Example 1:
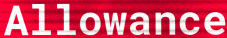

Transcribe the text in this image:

Allowance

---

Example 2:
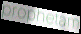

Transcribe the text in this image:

prophetam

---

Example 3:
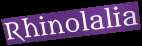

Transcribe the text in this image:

Rhinolalia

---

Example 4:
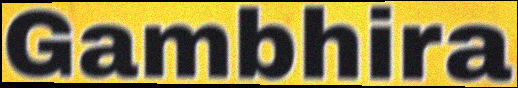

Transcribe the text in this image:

Gambhira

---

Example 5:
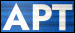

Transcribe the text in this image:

APT